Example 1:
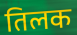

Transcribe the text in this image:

तिलक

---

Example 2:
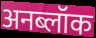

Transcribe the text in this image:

अनब्लॉक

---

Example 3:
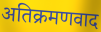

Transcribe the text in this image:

अतिक्रमणवाद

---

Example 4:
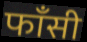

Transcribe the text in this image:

फाँसी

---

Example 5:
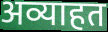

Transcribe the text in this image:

अव्याहत